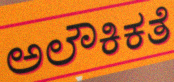
ಅಲೌಕಿಕತೆ